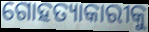
ଗୋହତ୍ୟାକାରୀକୁ